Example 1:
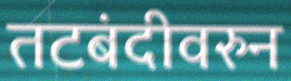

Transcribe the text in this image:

तटबंदीवरुन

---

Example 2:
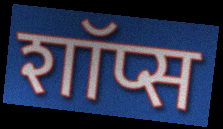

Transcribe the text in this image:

शॉप्स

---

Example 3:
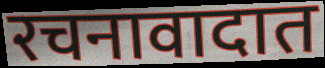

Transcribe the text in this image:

रचनावादात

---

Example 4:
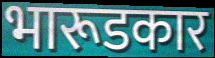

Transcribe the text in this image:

भारूडकार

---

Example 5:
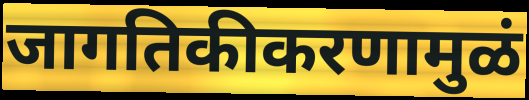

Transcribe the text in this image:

जागतिकीकरणामुळं